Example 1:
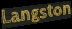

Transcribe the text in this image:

Langston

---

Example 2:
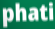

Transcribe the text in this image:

phati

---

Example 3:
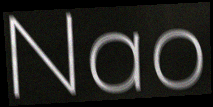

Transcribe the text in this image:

Nao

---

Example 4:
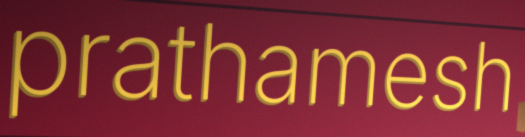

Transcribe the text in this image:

prathamesh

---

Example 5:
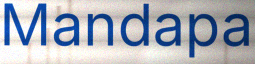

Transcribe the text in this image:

Mandapa